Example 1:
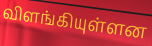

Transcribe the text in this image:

விளங்கியுள்ளன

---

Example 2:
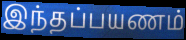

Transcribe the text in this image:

இந்தப்பயணம்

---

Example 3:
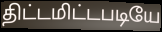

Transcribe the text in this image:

திட்டமிட்டபடியே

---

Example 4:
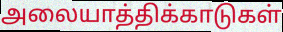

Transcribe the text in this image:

அலையாத்திக்காடுகள்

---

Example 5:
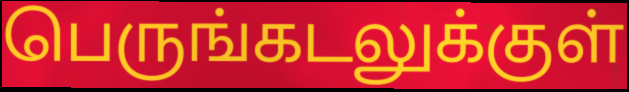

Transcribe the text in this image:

பெருங்கடலுக்குள்